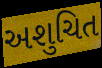
અશુચિત